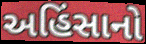
અહિંસાનો